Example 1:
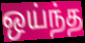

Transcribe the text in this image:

ஒய்ந்த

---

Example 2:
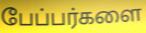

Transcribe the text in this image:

பேப்பர்களை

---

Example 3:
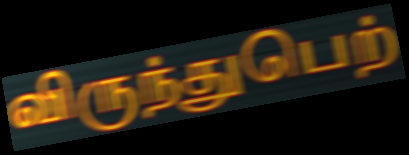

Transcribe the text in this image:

விருந்துபெற்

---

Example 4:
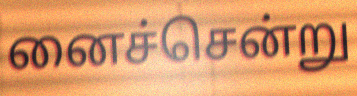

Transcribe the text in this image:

னைச்சென்று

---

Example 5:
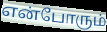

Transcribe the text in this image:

என்போரும்